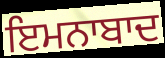
ਇਮਨਾਬਾਦ